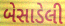
બેસાડેલી